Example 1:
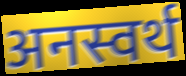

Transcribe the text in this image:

अनस्वर्थ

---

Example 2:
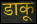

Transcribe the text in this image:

डाकू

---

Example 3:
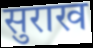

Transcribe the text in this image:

सुराख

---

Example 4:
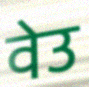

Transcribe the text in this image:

वेउ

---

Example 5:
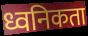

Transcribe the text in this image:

ध्वनिकता